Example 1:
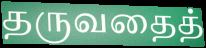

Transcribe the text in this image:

தருவதைத்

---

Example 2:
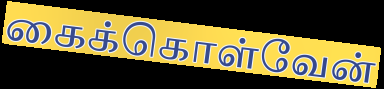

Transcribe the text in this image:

கைக்கொள்வேன்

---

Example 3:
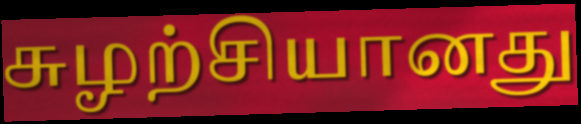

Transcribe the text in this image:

சுழற்சியானது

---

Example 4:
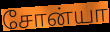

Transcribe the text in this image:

சோன்யா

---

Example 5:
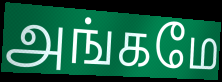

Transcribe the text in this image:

அங்கமே